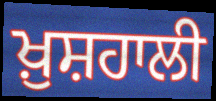
ਖ਼ੁਸ਼ਹਾਲੀ